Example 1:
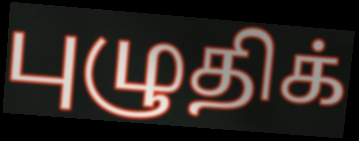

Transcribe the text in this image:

புழுதிக்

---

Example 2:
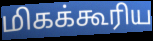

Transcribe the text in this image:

மிகக்கூரிய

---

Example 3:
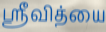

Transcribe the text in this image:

ஸ்ரீவித்யை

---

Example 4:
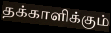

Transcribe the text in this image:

தக்காளிக்கும்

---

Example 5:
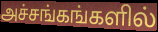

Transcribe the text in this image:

அச்சங்கங்களில்